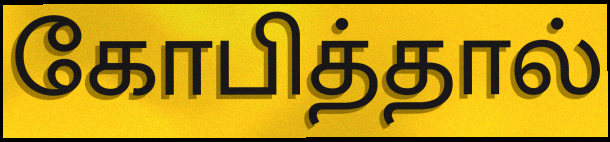
கோபித்தால்